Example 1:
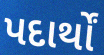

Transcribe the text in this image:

પદાર્થોં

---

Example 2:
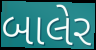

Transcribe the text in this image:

બાલેર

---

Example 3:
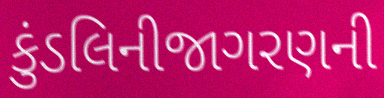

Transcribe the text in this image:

કુંડલિનીજાગરણની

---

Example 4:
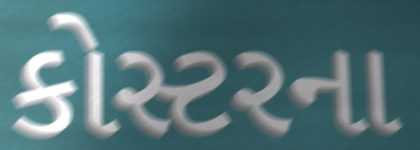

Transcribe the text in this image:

કોસ્ટરના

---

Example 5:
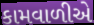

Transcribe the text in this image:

કામવાળીએ